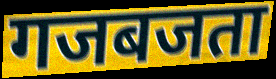
गजबजता